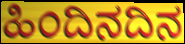
ಹಿಂದಿನದಿನ